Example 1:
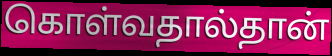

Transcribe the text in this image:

கொள்வதால்தான்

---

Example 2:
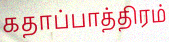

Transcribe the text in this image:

கதாப்பாத்திரம்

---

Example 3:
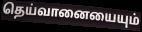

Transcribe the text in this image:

தெய்வானையையும்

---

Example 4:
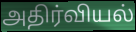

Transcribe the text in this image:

அதிர்வியல்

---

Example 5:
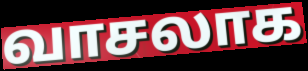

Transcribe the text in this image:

வாசலாக